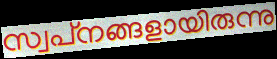
സ്വപ്‌നങ്ങളായിരുന്നു